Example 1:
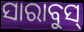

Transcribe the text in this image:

ସାରାବୁସ୍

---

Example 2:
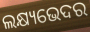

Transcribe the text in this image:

ଲକ୍ଷ୍ୟଭେଦର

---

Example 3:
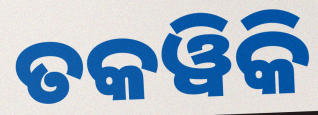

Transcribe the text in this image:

ତକୱିକି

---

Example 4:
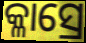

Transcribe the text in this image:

କ୍ଳାସ୍ରେ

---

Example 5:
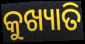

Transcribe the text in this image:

କୁଖ୍ୟାତି